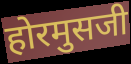
होरमुसजी